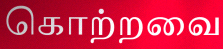
கொற்றவை